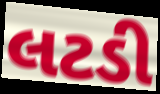
લટડી